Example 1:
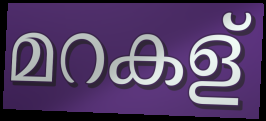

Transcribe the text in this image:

മറകള്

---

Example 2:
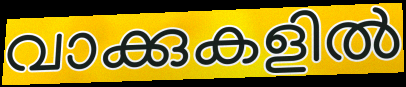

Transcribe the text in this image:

വാക്കുകളിൽ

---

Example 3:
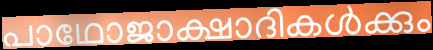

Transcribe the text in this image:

പാഥോജാക്ഷാദികൾക്കും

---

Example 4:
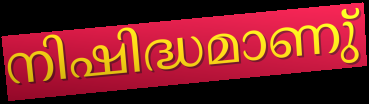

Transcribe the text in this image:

നിഷിദ്ധമാണു്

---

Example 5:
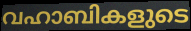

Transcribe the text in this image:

വഹാബികളുടെ